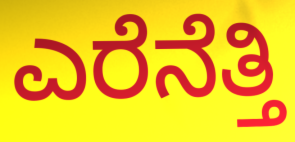
ಎರೆನೆತ್ತಿ